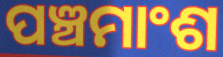
ପଞ୍ଚମାଂଶ